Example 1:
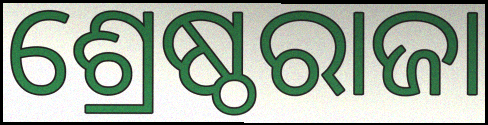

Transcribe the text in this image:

ଶ୍ରେଷ୍ଠରାଜା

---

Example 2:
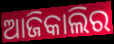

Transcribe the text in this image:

ଆଜିକାଲିର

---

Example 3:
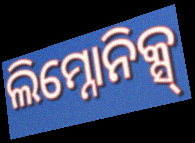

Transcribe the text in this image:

ଲିମ୍ନୋନିକ୍ସ୍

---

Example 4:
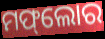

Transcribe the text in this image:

ମଫ୍‌ଲୋର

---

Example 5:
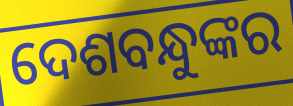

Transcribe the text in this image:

ଦେଶବନ୍ଧୁଙ୍କର